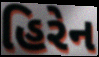
હિરેન